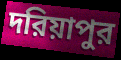
দরিয়াপুর